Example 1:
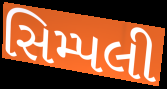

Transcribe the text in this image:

સિમ્પલી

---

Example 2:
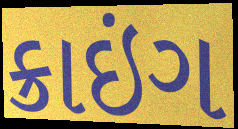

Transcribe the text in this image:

ક્રાઇંગ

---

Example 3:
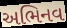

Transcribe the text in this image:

અભિનવ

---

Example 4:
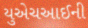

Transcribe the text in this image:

યુએચઆઈની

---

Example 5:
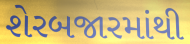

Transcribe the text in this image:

શેરબજારમાંથી